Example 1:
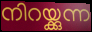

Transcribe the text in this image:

നിറയ്ക്കുന്ന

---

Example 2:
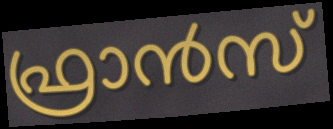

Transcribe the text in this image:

ഫ്രാൻസ്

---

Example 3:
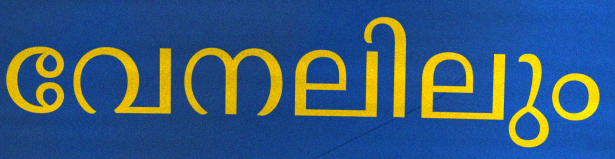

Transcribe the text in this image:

വേനലിലും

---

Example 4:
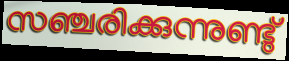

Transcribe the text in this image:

സഞ്ചരിക്കുന്നുണ്ടു്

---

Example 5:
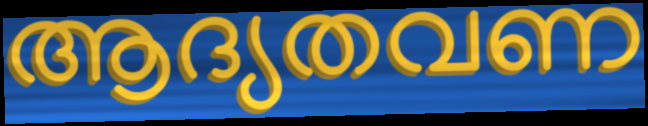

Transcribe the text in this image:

ആദ്യതവണ